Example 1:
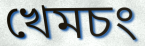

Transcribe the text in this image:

খেমচং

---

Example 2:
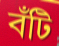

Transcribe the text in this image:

বঁটি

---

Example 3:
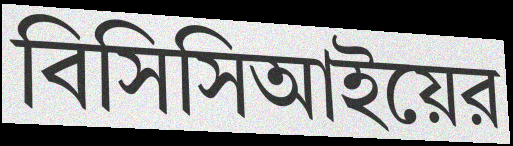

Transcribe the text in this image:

বিসিসিআইয়ের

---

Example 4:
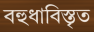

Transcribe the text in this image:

বহুধাবিস্তৃত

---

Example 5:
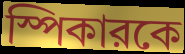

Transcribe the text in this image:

স্পিকারকে